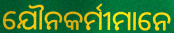
ଯୌନକର୍ମୀମାନେ